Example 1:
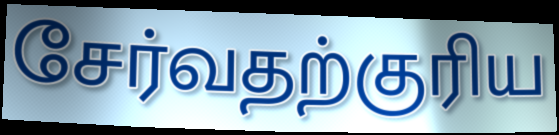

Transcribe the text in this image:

சேர்வதற்குரிய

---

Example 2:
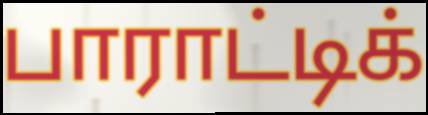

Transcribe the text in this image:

பாராட்டிக்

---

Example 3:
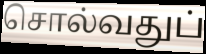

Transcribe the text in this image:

சொல்வதுப்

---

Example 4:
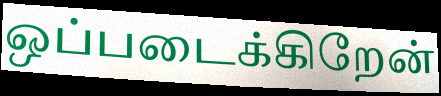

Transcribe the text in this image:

ஒப்படைக்கிறேன்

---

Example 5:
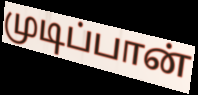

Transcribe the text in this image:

முடிப்பான்